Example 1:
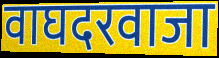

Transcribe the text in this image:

वाघदरवाजा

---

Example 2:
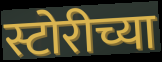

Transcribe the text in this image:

स्टोरीच्या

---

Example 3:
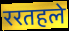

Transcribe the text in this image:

ररतहले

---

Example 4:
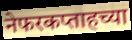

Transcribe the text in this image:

नेफरकप्ताहच्या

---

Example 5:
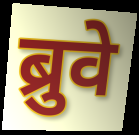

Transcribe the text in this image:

ब्रुवे